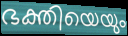
ഭക്തിയെയും